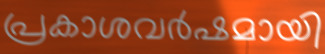
പ്രകാശവർഷമായി